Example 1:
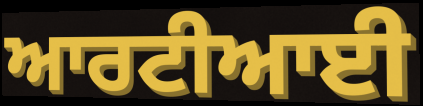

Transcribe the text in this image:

ਆਰਟੀਆਈ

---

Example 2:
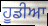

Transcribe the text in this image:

ਹੂਡੀਆ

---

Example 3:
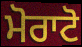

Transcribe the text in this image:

ਮੋਰਾਟੋ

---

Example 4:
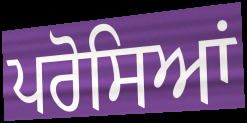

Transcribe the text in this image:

ਪਰੋਸਿਆਂ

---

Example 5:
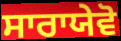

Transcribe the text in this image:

ਸਾਰਾਯੇਵੋ